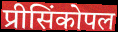
प्रीसिंकोपल